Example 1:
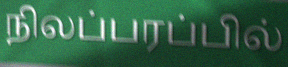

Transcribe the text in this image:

நிலப்பரப்பில்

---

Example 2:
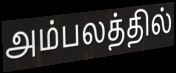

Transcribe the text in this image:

அம்பலத்தில்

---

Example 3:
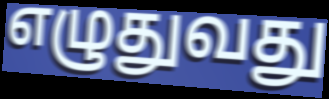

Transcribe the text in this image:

எழுதுவது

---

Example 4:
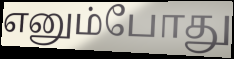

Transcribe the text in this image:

எனும்போது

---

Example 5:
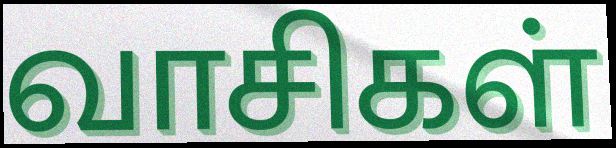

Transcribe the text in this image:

வாசிகள்